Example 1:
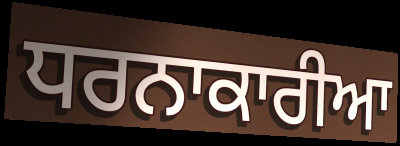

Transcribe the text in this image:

ਧਰਨਾਕਾਰੀਆ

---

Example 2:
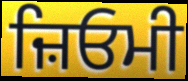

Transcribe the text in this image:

ਜ਼ਿਓਮੀ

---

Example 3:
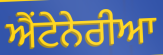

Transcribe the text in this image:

ਐਂਟੇਨੇਰੀਆ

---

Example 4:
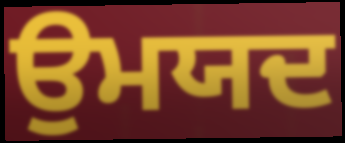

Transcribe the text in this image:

ਉਮਯਦ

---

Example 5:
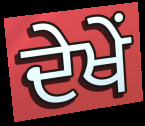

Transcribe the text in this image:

ਦੇਖੇਂ